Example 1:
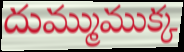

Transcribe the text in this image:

దుమ్ముముక్క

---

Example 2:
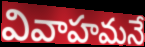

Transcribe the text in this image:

వివాహమనే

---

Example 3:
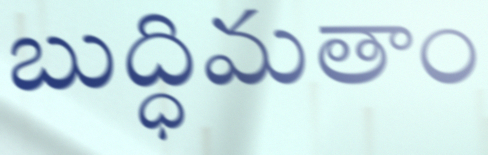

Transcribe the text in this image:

బుద్ధిమతాం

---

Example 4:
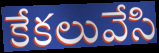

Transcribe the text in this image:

కేకలువేసి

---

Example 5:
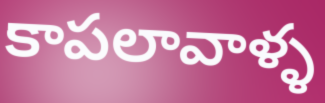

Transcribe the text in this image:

కాపలావాళ్ళ